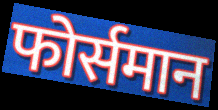
फोर्समान